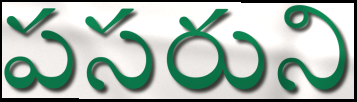
పసరుని